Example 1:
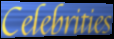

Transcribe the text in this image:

Celebrities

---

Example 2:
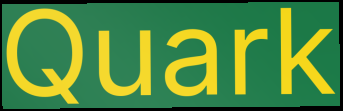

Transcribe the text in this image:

Quark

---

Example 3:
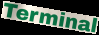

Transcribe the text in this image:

Terminal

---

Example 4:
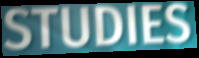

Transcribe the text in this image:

STUDIES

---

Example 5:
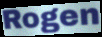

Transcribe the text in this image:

Rogen